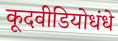
कूदवीडियोधंधे